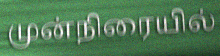
முன்நிரையில்